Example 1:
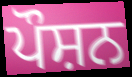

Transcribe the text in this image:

ਪੌਸ਼ਨ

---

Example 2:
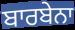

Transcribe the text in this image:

ਬਾਰਬੇਨਾ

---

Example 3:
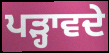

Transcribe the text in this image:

ਪੜ੍ਹਾਵਦੇ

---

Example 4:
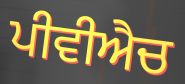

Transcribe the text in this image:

ਪੀਵੀਐਚ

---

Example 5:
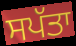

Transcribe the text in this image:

ਸਪੱਤਾ